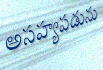
అసహ్యపడును